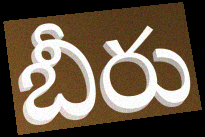
బీరు